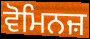
ਵੋਮਿਨਜ਼